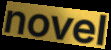
novel